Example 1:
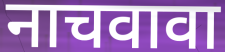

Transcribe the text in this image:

नाचवावा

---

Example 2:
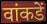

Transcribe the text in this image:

वांकडें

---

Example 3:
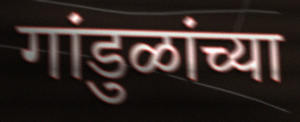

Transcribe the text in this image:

गांडुळांच्या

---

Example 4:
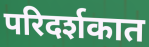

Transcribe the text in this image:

परिदर्शकात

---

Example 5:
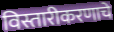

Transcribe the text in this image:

विस्तारीकरणाचे